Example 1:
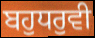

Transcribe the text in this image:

ਬਹੁਧਰੁਵੀ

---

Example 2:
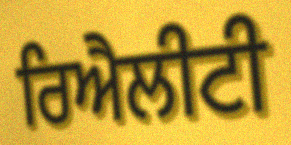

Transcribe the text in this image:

ਰਿਐਲੀਟੀ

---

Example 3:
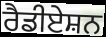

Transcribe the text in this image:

ਰੈਡੀਏਸ਼ਨ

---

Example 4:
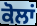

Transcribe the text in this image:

ਕੋਲਾਂ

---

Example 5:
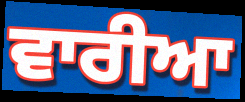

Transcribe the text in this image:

ਵਾਰੀਆ